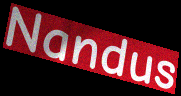
Nandus